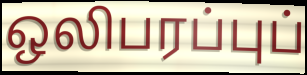
ஒலிபரப்புப்